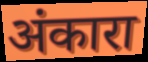
अंकारा